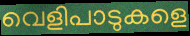
വെളിപാടുകളെ